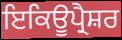
ਇਕਿਊਪ੍ਰੈਸ਼ਰ